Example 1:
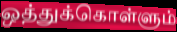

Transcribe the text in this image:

ஒத்துக்கொள்ளும்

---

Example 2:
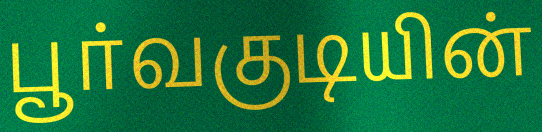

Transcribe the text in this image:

பூர்வகுடியின்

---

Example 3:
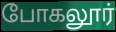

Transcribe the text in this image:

போகலூர்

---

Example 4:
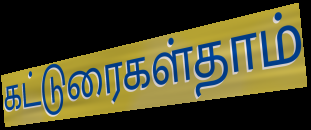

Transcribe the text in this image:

கட்டுரைகள்தாம்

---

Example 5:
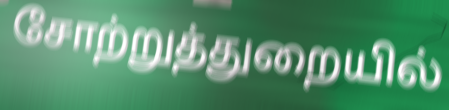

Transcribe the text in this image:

சோற்றுத்துறையில்